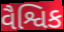
વૈશ્વિક